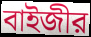
বাইজীর